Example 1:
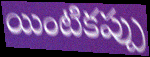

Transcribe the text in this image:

యింటికప్పు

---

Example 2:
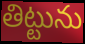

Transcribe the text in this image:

తిట్టును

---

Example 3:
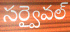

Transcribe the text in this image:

సర్వైవల్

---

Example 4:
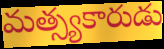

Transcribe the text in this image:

మత్స్యకారుడు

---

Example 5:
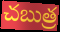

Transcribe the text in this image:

చబుత్ర